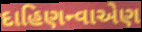
દાહિણન્વાએણ